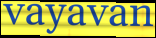
vayavan